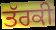
ਤੱਰਕੀ